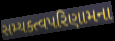
સમ્યક્ત્વપરિણામના